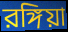
রঙ্গিয়া